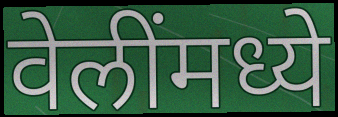
वेलींमध्ये